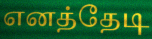
எனத்தேடி